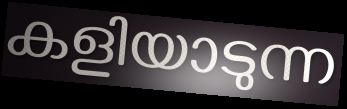
കളിയാടുന്ന